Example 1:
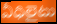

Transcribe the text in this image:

వీధిలైటు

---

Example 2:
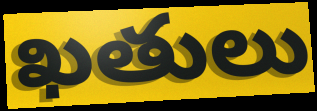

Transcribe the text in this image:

ఖతులు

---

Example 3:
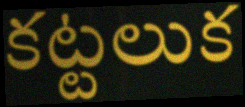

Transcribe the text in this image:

కట్టలుక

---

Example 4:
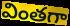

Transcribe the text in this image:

వింతగా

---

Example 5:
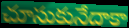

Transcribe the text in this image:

చూసుకునేదాకా